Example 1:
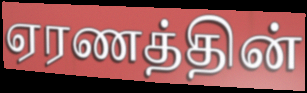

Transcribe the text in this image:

ஏரணத்தின்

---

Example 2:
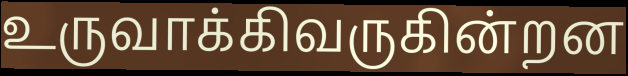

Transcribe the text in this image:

உருவாக்கிவருகின்றன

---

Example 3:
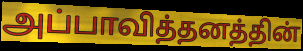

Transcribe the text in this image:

அப்பாவித்தனத்தின்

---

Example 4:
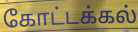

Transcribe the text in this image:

கோட்டக்கல்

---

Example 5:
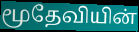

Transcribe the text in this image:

மூதேவியின்